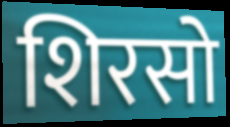
शिरसो